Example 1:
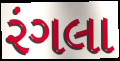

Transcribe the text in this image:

રંગલા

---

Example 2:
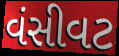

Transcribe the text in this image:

વંસીવટ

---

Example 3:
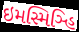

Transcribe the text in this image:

ઇમસ્મિઞ્હિ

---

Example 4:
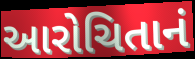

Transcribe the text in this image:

આરોચિતાનં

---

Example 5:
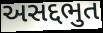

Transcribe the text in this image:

અસદ્દભુત